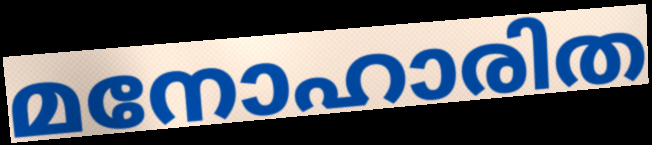
മനോഹാരിത